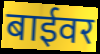
बाईवर